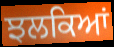
ਝਲਕਿਆਂ